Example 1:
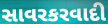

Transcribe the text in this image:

સાવરકરવાદી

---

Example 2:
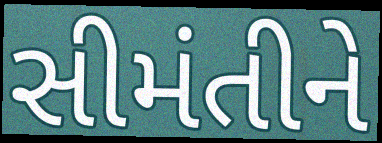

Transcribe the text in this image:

સીમંતીને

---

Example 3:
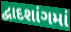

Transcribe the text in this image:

દ્વાદશાંગમાં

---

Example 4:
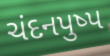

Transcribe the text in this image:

ચંદનપુષ્પ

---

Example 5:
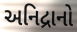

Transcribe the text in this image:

અનિદ્રાનો